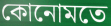
কোনোমতে